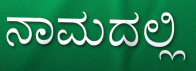
ನಾಮದಲ್ಲಿ